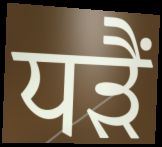
ਧੜੈਂ